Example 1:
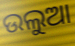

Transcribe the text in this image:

ଉଲୁଆ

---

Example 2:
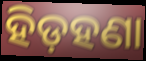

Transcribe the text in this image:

ହିଡ଼ହଣା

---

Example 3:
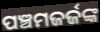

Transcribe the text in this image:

ପଞ୍ଚମଜର୍ଜଙ୍କ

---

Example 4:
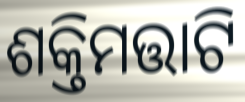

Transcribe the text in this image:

ଶକ୍ତିମତ୍ତାଟି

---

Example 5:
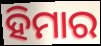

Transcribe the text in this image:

ହିମାର